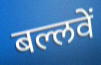
बल्लवें